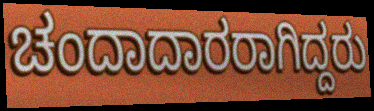
ಚಂದಾದಾರರಾಗಿದ್ದರು